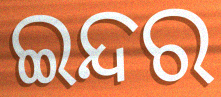
ଇନ୍ଦର